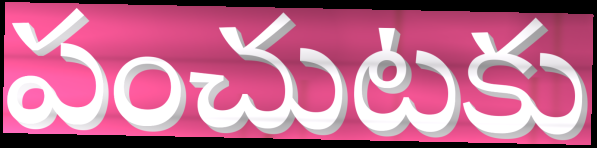
పంచుటకు